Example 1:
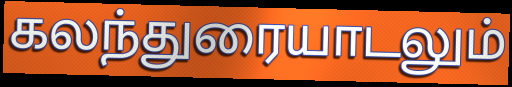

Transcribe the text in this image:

கலந்துரையாடலும்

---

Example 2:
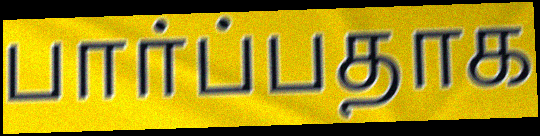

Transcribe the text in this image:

பார்ப்பதாக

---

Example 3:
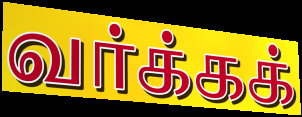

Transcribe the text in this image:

வர்க்கக்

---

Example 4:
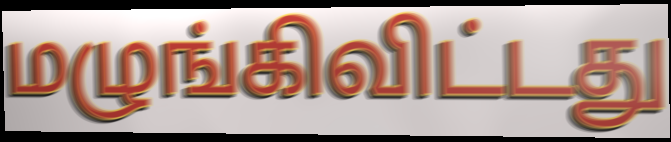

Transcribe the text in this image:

மழுங்கிவிட்டது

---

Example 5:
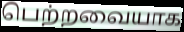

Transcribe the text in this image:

பெற்றவையாக